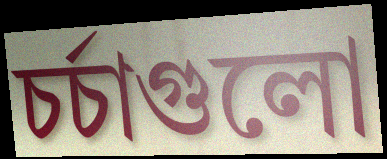
চর্চাগুলো